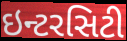
ઇન્ટરસિટી